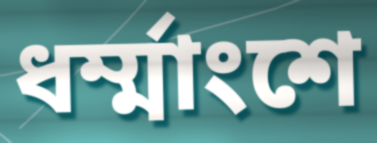
ধর্ম্মাংশে